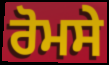
ਰੋਮਸੇ